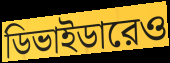
ডিভাইডারেও